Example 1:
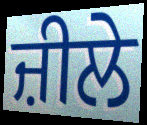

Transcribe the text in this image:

ਜ਼ੀਲੇ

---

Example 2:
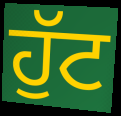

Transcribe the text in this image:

ਹੁੱਟ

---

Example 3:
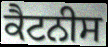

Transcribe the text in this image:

ਕੈਟਨੀਸ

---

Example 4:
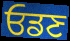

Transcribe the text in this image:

ਓਡਣ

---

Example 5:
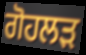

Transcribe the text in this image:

ਗੋਹਲੜ